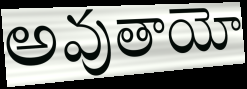
అవుతాయో